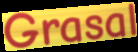
Grasal